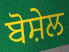
ਬੋਸ਼ੇਲ